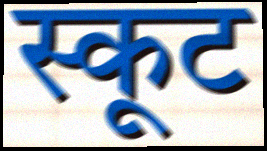
स्कूट